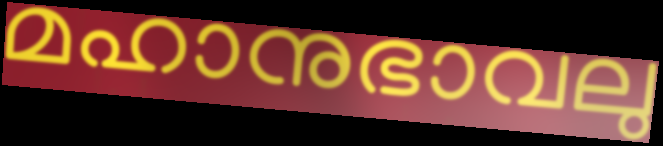
മഹാനുഭാവലു